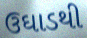
ઉઘાડથી